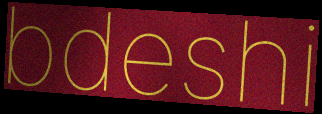
bdeshi